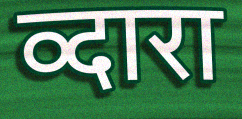
व्दारा